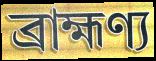
ব্রাহ্মণ্য